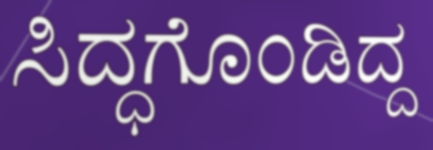
ಸಿದ್ಧಗೊಂಡಿದ್ದ